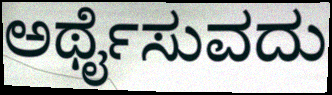
ಅರ್ಥೈಸುವದು